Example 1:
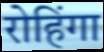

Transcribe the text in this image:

रोहिंगा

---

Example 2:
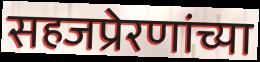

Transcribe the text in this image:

सहजप्रेरणांच्या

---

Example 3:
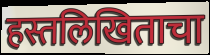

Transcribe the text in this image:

हस्तलिखिताचा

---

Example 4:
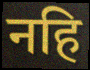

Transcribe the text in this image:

नहि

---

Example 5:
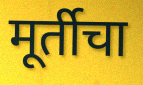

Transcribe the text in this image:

मूर्तीचा